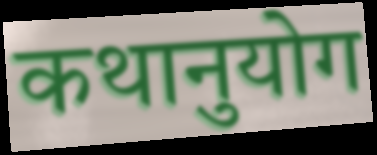
कथानुयोग